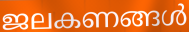
ജലകണങ്ങൾ